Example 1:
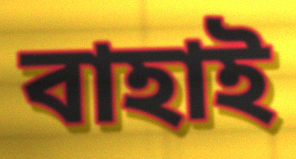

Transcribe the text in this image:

বাহাই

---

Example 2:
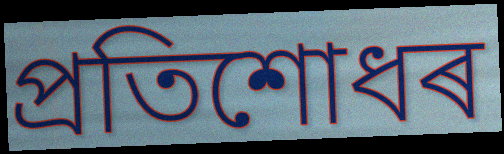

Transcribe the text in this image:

প্ৰতিশোধৰ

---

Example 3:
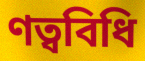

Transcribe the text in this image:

ণত্ববিধি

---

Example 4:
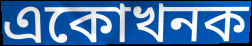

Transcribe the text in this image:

একোখনক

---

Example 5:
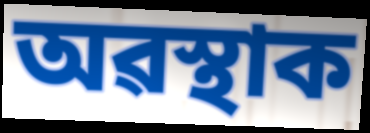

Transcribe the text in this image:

অৱস্থাক